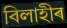
বিলাহীৰ